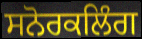
ਸਨੋਰਕਲਿੰਗ